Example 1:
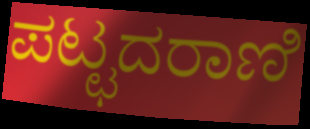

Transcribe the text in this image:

ಪಟ್ಟದರಾಣಿ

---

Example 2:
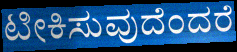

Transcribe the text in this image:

ಟೀಕಿಸುವುದೆಂದರೆ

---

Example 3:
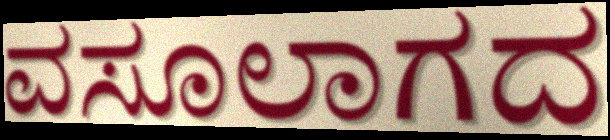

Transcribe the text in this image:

ವಸೂಲಾಗದ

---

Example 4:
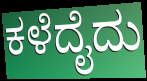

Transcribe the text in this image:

ಕಳೆದೈದು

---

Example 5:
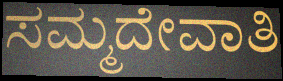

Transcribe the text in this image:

ಸಮ್ಮದೇವಾತಿ